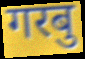
गरबु